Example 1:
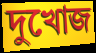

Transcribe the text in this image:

দুখোজ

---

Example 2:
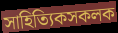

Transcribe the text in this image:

সাহিত্যিকসকলক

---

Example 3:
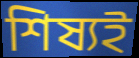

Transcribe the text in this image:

শিষ্যই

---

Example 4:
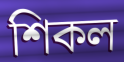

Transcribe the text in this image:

শিকল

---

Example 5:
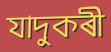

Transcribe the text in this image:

যাদুকৰী